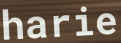
harie